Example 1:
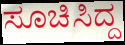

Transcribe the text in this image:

ಸೂಚಿಸಿದ್ದ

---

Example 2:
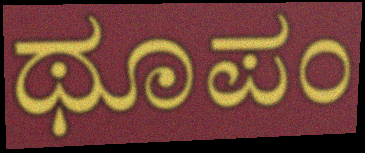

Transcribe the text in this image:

ಥೂಪಂ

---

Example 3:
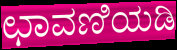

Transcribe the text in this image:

ಛಾವಣಿಯಡಿ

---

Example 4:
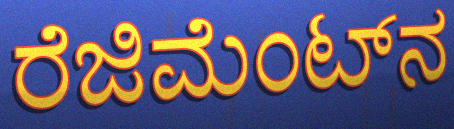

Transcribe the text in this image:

ರೆಜಿಮೆಂಟ್‌ನ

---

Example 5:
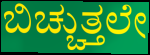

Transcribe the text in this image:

ಬಿಚ್ಚುತ್ತಲೇ